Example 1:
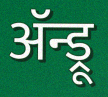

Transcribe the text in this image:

ॲन्ड्रू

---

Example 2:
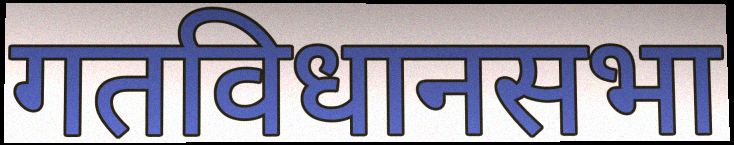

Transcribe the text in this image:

गतविधानसभा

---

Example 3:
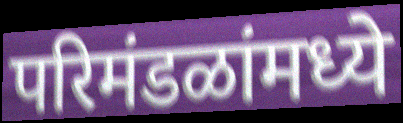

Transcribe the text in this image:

परिमंडळांमध्ये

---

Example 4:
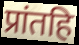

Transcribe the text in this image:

प्रांतहि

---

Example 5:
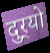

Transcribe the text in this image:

दुर्यो